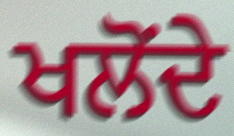
ਖਲੋਂਦੇ